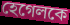
হেগেলকে